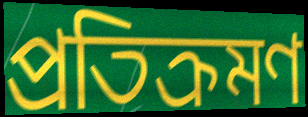
প্রতিক্রমণ